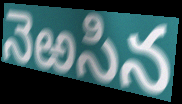
నెఱసిన